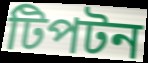
টিপটন